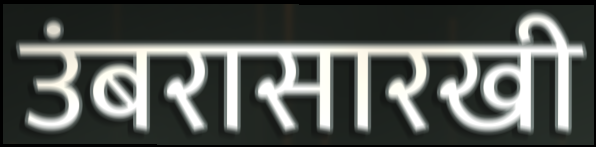
उंबरासारखी